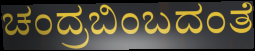
ಚಂದ್ರಬಿಂಬದಂತೆ